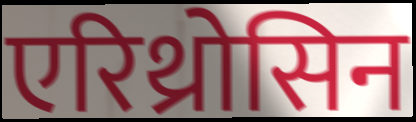
एरिथ्रोसिन